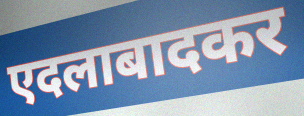
एदलाबादकर